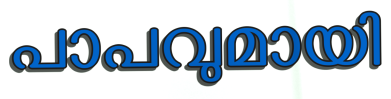
പാപവുമായി